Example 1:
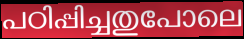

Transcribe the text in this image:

പഠിപ്പിച്ചതുപോലെ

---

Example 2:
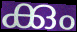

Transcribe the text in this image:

ക്കും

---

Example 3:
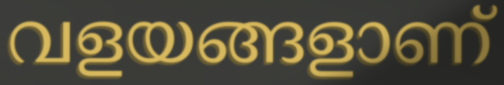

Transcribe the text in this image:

വളയങ്ങളാണ്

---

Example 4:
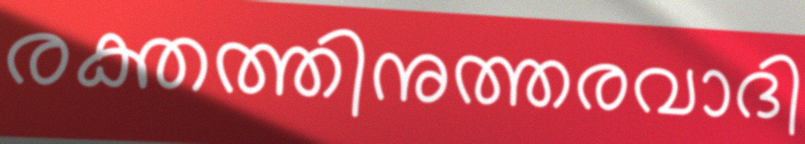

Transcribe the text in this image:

രക്തത്തിനുത്തരവാദി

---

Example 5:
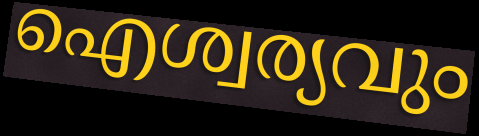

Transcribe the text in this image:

ഐശ്വര്യവും